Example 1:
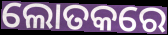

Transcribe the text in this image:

ଲୋତକରେ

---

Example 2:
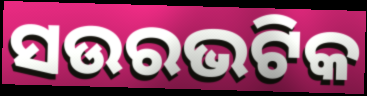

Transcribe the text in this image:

ସଉରଭଟିକ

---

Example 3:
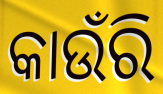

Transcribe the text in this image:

କାଉଁରି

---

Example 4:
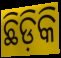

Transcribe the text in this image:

ଛିଡ଼ିକି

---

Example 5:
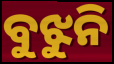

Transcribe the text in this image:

ବୁଝୁନି